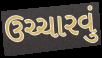
ઉચ્ચારવું